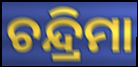
ଚନ୍ଦ୍ରିମା